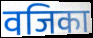
वजिका